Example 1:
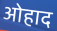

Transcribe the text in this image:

ओहाद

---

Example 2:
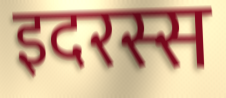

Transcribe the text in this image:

इदरस्स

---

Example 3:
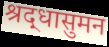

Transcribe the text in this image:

श्रद्धासुमन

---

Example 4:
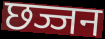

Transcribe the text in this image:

छज्जन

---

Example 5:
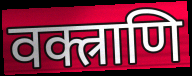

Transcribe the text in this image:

वक्त्राणि